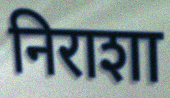
निराशा